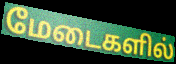
மேடைகளில்